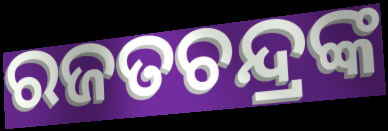
ରଜତଚନ୍ଦ୍ରଙ୍କ